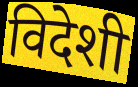
विदेशी